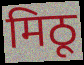
मिठू